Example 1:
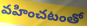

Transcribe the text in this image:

వహించటంతో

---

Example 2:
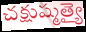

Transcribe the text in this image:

చక్షుష్మత్యై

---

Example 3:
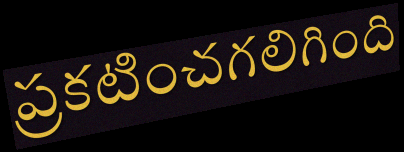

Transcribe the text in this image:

ప్రకటించగలిగింది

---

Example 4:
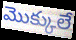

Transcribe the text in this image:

మొక్కులే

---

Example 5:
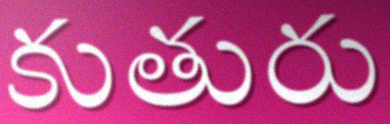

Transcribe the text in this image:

కుతురు